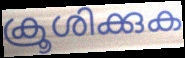
ക്രൂശിക്കുക